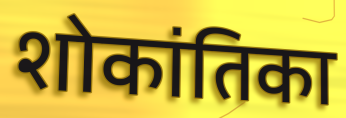
शोकांतिका